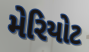
મેરિયોટ